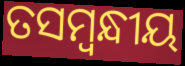
ତସମ୍ବନ୍ଧୀୟ